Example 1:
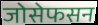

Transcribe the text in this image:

जोसेफसन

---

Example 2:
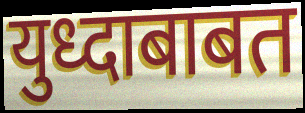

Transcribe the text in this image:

युध्दाबाबत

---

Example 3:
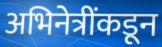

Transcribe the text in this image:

अभिनेत्रींकडून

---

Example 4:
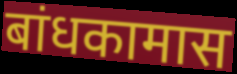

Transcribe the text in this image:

बांधकामास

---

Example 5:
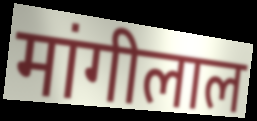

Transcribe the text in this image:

मांगीलाल